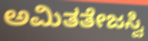
ಅಮಿತತೇಜಸ್ವಿ